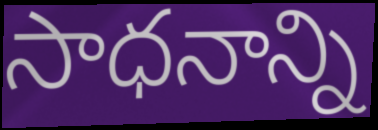
సాధనాన్ని